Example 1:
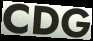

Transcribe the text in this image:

CDG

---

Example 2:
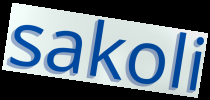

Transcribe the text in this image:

sakoli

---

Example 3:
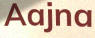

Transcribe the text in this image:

Aajna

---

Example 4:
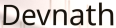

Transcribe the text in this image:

Devnath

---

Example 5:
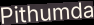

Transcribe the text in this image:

Pithumda